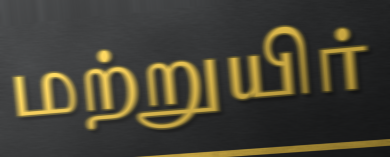
மற்றுயிர்